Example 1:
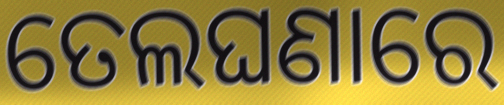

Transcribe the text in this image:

ତେଲଘଣାରେ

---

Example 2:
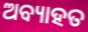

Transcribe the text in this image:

ଅବ୍ୟାହତ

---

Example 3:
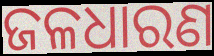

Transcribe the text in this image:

ଜଳଧାରଣ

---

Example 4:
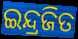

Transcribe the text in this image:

ଇନ୍ଦ୍ରଜିତ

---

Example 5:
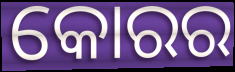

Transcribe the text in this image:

କୋରର